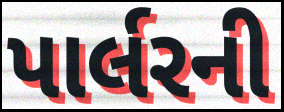
પાર્લરની